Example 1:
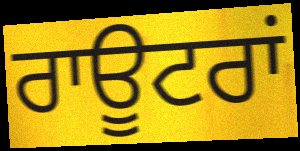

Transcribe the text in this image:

ਰਾਊਟਰਾਂ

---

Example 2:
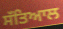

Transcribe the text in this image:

ਸੱਤਿਆਲ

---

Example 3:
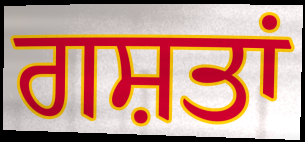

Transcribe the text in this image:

ਗਸ਼ਤਾਂ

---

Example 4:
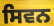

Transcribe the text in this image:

ਸਿਵਨ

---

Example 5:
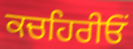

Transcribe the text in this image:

ਕਚਹਿਰੀਓਂ